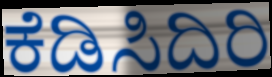
ಕೆಡಿಸಿದಿರಿ